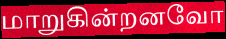
மாறுகின்றனவோ